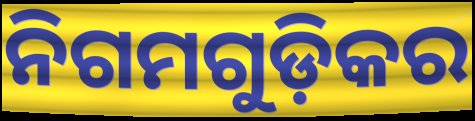
ନିଗମଗୁଡ଼ିକର